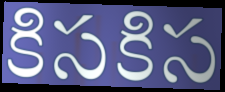
కిసకిస